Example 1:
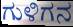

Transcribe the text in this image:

ಗುಳಿಗನ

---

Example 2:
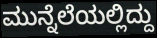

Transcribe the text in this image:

ಮುನ್ನೆಲೆಯಲ್ಲಿದ್ದು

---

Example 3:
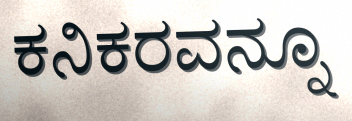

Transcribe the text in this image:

ಕನಿಕರವನ್ನೂ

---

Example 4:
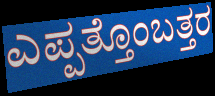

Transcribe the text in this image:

ಎಪ್ಪತ್ತೊಂಬತ್ತರ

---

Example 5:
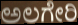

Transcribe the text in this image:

ಅಲಗೇರಿ